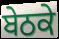
ਬੇਠਕੇ